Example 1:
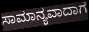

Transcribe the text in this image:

ಸಾಮಾನ್ಯವಾದಾಗ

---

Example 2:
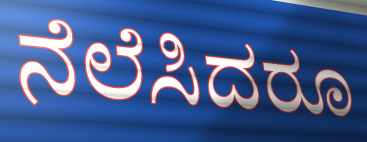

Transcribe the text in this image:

ನೆಲೆಸಿದರೂ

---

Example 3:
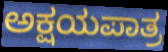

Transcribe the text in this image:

ಅಕ್ಷಯಪಾತ್ರ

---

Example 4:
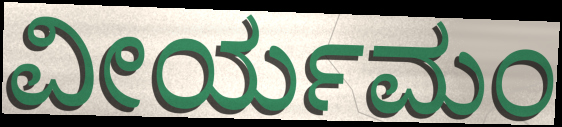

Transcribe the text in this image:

ವೀರ್ಯಮಂ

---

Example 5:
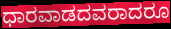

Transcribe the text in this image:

ಧಾರವಾಡದವರಾದರೂ